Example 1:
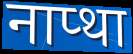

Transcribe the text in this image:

नाप्था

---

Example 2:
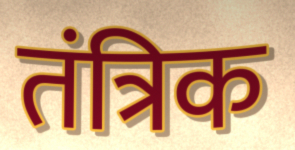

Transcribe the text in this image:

तंत्रिक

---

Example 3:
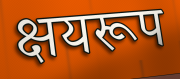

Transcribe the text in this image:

क्षयरूप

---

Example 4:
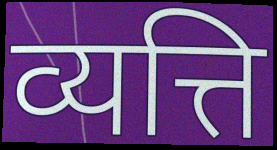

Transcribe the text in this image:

व्यत्ति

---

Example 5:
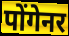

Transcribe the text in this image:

पोंगेनर